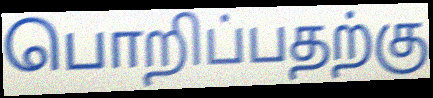
பொறிப்பதற்கு